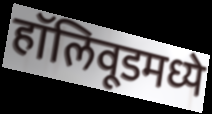
हॉलिवूडमध्ये